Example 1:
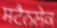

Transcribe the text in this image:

ਸਟੈਨਲੇਕ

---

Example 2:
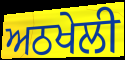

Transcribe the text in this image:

ਅਠਖੇਲੀ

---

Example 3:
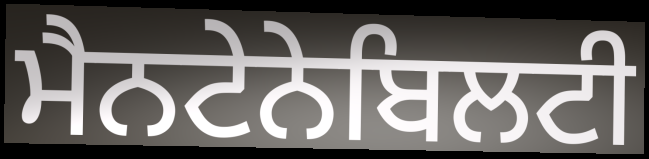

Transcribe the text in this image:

ਮੈਨਟੇਨੇਬਿਲਟੀ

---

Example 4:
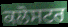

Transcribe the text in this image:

ਕਲੋਸਟਰ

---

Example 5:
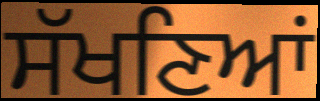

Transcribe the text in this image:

ਸੱਖਣਿਆਂ